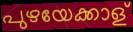
പുഴയേക്കാള്